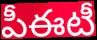
పీఈటీ